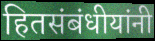
हितसंबंधीयांनी